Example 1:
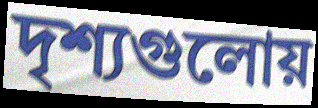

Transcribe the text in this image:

দৃশ্যগুলোয়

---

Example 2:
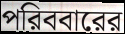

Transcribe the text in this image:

পরিববারের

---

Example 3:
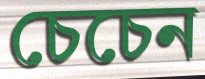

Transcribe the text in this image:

চেচেন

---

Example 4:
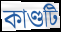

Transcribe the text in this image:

কাণ্ডটি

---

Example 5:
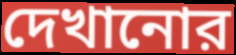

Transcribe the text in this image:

দেখানোর